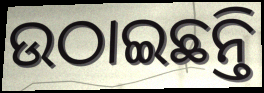
ଉଠାଇଛନ୍ତି